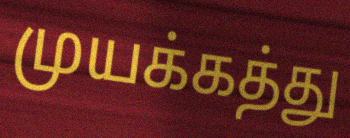
முயக்கத்து